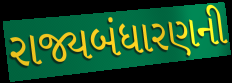
રાજ્યબંધારણની